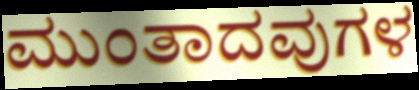
ಮುಂತಾದವುಗಳ